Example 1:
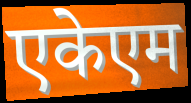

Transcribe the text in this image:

एकेएम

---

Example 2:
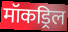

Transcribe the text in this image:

मॉकड्रिल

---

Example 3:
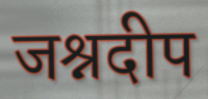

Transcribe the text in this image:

जश्नदीप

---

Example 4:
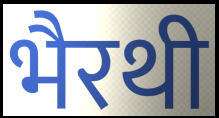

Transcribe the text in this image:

भैरथी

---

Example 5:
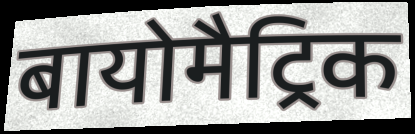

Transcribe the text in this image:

बायोमैट्रिक